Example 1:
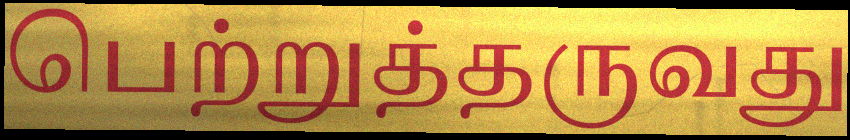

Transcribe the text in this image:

பெற்றுத்தருவது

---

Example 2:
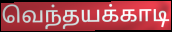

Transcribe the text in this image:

வெந்தயக்காடி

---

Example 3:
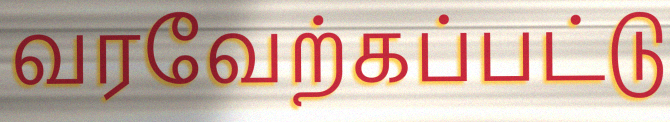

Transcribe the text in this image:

வரவேற்கப்பட்டு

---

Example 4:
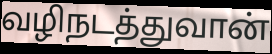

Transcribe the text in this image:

வழிநடத்துவான்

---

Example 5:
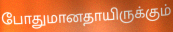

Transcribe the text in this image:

போதுமானதாயிருக்கும்